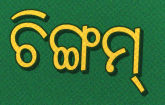
ଚିଙ୍ଗମ୍